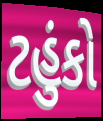
ટહુંકો